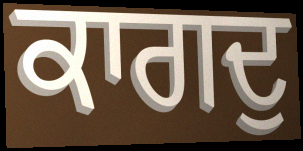
ਕਾਗਦੁ